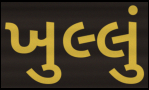
ખુલ્લું